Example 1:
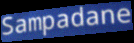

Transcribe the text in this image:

Sampadane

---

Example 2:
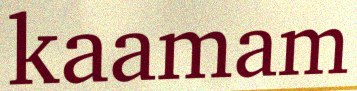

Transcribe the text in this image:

kaamam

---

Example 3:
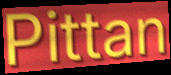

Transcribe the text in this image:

Pittan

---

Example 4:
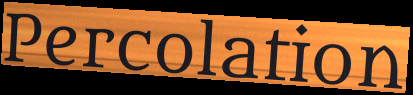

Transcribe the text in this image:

Percolation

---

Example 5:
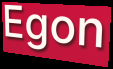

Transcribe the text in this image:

Egon